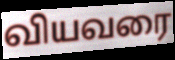
வியவரை